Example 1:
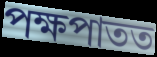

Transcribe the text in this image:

পক্ষপাতত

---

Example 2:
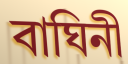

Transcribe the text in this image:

বাঘিনী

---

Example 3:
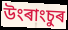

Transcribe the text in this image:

উংৰাংচুৰ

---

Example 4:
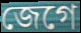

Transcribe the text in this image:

জেগে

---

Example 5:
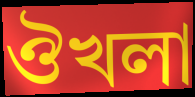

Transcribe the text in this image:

ঔখলা